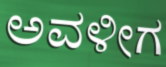
ಅವಳೀಗ